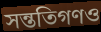
সন্ততিগণও